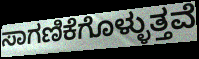
ಸಾಗಣಿಕೆಗೊಳ್ಳುತ್ತವೆ